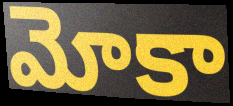
మోకా